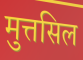
मुत्तसिल